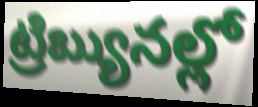
ట్రిబ్యునల్లో